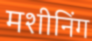
मशीनिंग